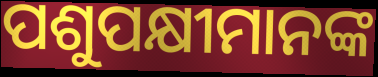
ପଶୁପକ୍ଷୀମାନଙ୍କ